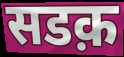
सडक़